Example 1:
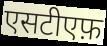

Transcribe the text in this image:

एसटीएफ़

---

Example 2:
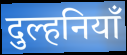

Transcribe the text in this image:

दुल्हनियाँ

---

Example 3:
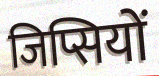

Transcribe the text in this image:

जिप्सियों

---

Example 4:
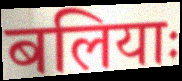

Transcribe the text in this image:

बलियाः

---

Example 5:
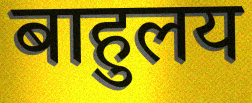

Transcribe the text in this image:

बाहुलय